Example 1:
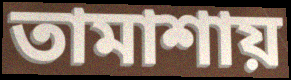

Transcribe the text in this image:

তামাশায়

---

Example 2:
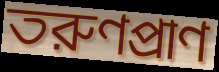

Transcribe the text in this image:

তরুণপ্রাণ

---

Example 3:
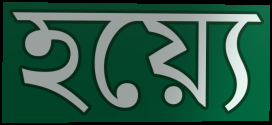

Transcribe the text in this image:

হয়্যে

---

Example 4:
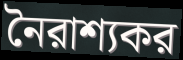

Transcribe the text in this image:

নৈরাশ্যকর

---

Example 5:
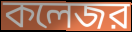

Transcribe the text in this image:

কলেজর